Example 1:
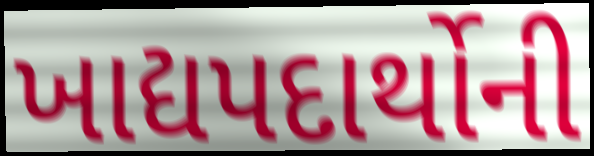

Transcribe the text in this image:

ખાદ્યપદાર્થોની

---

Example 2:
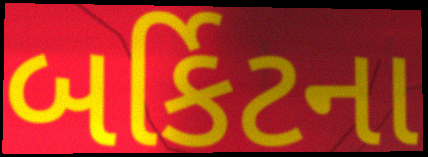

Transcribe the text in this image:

બર્કિટના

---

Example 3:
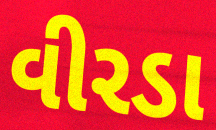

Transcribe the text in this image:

વીરડા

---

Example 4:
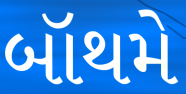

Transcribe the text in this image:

બૉથમે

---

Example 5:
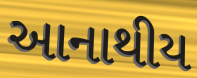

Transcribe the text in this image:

આનાથીય